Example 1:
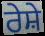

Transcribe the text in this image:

ਰੇਸ਼ੇ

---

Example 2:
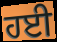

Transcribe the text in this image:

ਹਈ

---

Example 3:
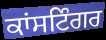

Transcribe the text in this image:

ਕਾਂਸਟਿੰਗਰ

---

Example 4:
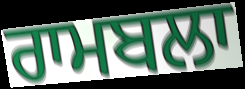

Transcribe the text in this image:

ਰਾਮਬਲਾ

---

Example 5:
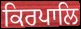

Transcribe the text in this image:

ਕਿਰਪਾਲਿ